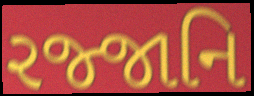
રજ્જાનિ